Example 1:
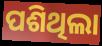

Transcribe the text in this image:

ପଶିଥିଲା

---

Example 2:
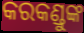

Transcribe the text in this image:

କରକଣ୍ଡୁଙ୍କ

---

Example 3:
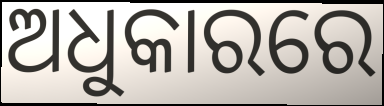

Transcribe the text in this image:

ଅଧୁକାରରେ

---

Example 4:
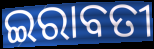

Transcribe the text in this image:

ଇରାବତୀ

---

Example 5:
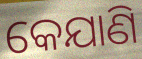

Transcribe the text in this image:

କେଯାଣି